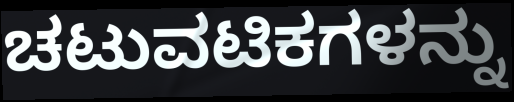
ಚಟುವಟಿಕಗಳನ್ನು